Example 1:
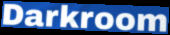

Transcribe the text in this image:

Darkroom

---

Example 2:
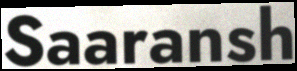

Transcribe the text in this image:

Saaransh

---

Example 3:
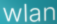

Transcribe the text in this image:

wlan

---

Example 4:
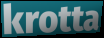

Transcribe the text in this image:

krotta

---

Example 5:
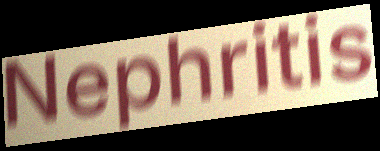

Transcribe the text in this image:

Nephritis